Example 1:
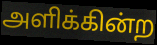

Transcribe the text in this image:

அளிக்கின்ற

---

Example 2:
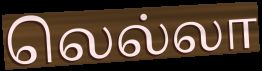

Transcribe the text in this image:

லெல்லா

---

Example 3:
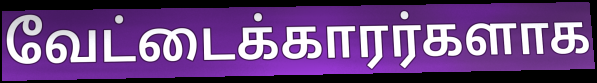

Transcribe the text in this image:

வேட்டைக்காரர்களாக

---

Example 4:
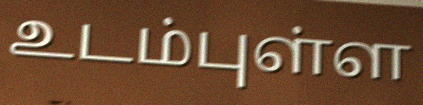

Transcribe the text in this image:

உடம்புள்ள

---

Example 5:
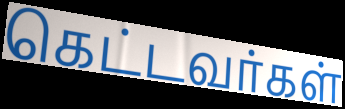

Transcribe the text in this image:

கெட்டவர்கள்